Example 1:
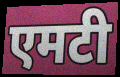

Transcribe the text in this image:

एमटी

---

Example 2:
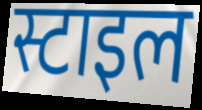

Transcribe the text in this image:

स्टाइल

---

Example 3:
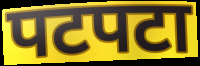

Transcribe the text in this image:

पटपटा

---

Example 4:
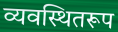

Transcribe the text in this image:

व्यवस्थितरूप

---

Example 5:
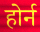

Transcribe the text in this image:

होर्न